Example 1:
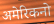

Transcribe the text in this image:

अमेरिकनो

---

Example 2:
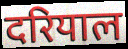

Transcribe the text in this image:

दरियाल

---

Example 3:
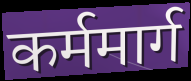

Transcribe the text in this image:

कर्ममार्ग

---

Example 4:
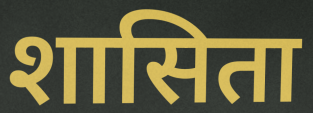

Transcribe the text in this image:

शासिता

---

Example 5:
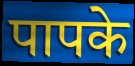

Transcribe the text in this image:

पापके